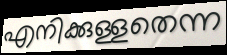
എനിക്കുള്ളതെന്ന